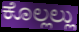
ಕೊಲ್ಲಲ್ಲು